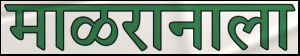
माळरानाला